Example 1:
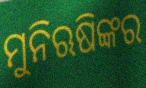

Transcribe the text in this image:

ମୁନିଋଷିଙ୍କର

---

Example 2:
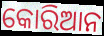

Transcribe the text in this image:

କୋରିଆନ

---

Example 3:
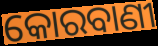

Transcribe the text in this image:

କୋରବାଣୀ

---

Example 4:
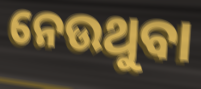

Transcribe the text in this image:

ନେଉଥୁବା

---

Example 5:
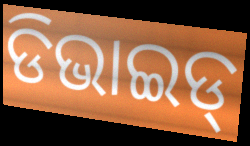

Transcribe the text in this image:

ଡିଭାଇଡ୍